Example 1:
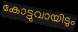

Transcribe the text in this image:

കോട്ടുവായിടും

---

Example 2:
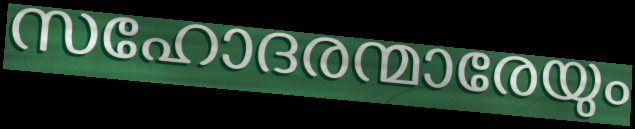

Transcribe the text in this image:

സഹോദരന്മാരേയും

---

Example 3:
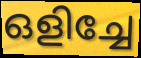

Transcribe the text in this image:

ഒളിച്ചേ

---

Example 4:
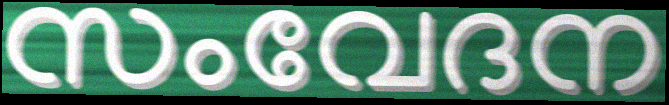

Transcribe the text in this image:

സംവേദന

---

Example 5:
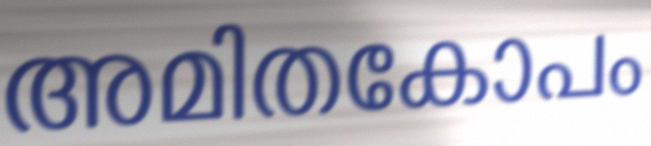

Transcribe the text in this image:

അമിതകോപം